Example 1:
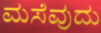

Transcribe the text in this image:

ಮಸೆವುದು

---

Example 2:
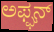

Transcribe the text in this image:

ಅಫ್ಘನ್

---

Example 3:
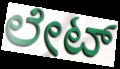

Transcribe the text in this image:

ಲೇಟ್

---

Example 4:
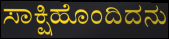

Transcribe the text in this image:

ಸಾಕ್ಷಿಹೊಂದಿದನು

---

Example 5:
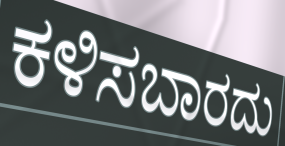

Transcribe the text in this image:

ಕಳಿಸಬಾರದು